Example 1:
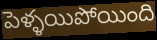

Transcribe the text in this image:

పెళ్ళయిపోయింది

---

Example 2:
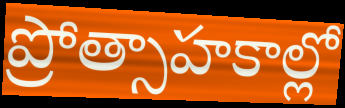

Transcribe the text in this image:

ప్రోత్సాహకాల్లో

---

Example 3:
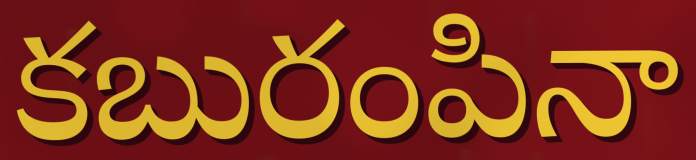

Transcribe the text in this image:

కబురంపినా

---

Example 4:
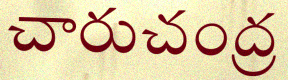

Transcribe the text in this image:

చారుచంద్ర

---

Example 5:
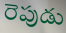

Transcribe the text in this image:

రెపుడు